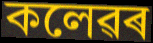
কলেৱৰ